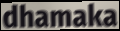
dhamaka